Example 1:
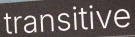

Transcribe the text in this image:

transitive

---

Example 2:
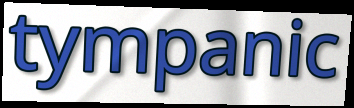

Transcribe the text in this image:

tympanic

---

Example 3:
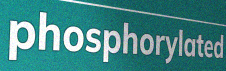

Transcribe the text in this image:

phosphorylated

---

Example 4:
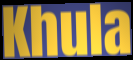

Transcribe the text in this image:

Khula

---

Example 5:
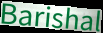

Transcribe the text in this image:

Barishal